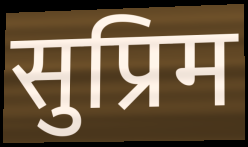
सुप्रिम